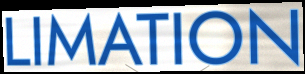
LIMATION